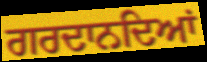
ਗਰਦਾਨਦਿਆਂ